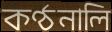
কণ্ঠনালি